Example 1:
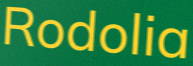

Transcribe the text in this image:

Rodolia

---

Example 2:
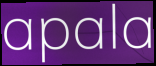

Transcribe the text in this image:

apala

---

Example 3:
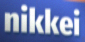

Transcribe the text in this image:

nikkei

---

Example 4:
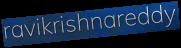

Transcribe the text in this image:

ravikrishnareddy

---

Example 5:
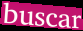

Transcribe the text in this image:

buscar